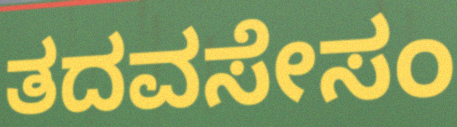
ತದವಸೇಸಂ